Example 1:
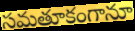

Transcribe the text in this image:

సమతూకంగానూ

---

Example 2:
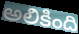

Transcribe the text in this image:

అలికింది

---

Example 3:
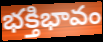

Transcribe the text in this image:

భక్తిభావం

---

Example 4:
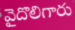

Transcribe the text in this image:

వైదొలిగారు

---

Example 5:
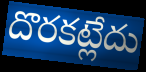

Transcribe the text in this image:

దొరకట్లేదు